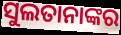
ସୁଲତାନାଙ୍କର